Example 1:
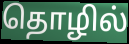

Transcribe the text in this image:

தொழில்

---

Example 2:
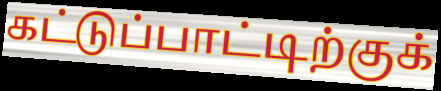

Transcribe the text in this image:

கட்டுப்பாட்டிற்குக்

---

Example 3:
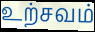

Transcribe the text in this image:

உற்சவம்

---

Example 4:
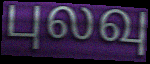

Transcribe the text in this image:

புலவு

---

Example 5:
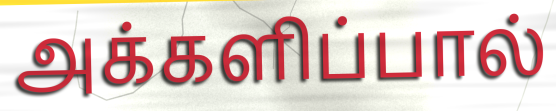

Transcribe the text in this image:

அக்களிப்பால்